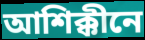
আশিক্কীনে